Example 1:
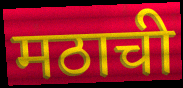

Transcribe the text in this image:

मठाची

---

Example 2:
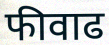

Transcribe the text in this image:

फीवाढ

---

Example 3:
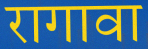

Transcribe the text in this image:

रागावा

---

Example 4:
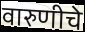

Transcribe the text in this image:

वारुणीचे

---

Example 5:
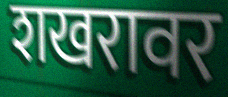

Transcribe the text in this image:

शखरावर